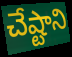
చేష్టాని